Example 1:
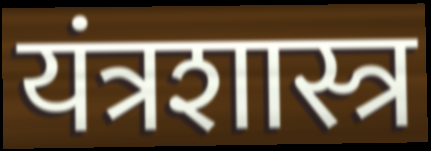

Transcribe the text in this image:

यंत्रशास्त्र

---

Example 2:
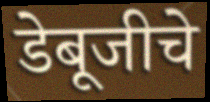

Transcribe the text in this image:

डेबूजीचे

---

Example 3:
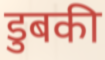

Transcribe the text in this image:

डुबकी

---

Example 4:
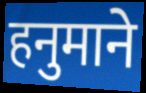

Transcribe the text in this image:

हनुमाने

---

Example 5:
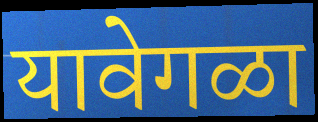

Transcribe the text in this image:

यावेगळा